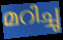
മറിച്ചു